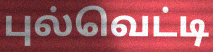
புல்வெட்டி